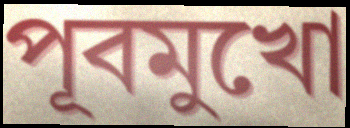
পূবমুখো